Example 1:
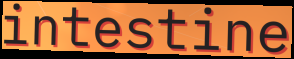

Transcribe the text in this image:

intestine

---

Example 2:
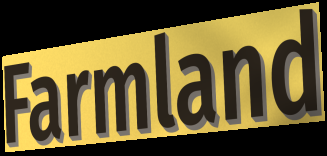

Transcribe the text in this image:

Farmland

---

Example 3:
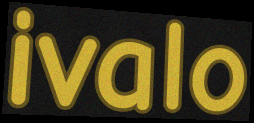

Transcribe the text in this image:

ivalo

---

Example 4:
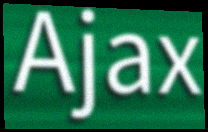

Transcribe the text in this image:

Ajax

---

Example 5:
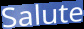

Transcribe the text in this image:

Salute